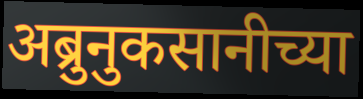
अब्रुनुकसानीच्या